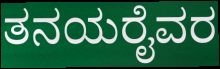
ತನಯರೈವರ